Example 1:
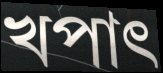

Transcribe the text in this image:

খপাৎ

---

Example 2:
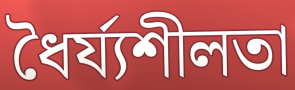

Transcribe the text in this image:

ধৈর্য্যশীলতা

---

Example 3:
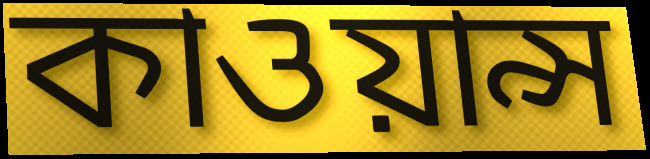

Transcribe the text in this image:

কাওয়ান্স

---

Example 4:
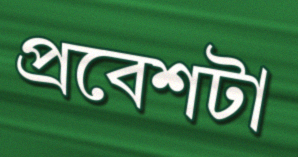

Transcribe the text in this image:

প্রবেশটা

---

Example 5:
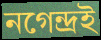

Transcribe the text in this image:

নগেন্দ্রই